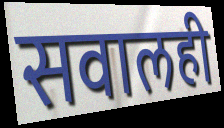
सवालही